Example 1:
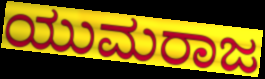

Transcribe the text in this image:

ಯುಮರಾಜ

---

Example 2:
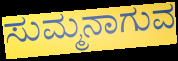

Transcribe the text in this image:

ಸುಮ್ಮನಾಗುವ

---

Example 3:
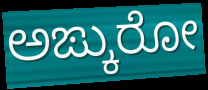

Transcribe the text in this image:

ಅಙ್ಕುರೋ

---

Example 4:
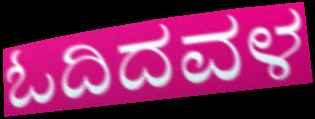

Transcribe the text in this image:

ಓದಿದವಳ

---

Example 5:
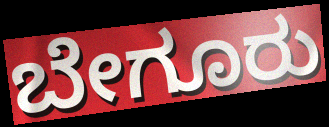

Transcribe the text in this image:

ಬೇಗೂರು